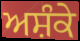
ਅਸ਼ੰਕੇ